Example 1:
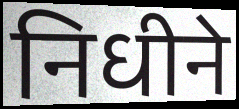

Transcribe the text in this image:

निधीने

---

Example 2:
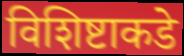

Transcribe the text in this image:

विशिष्टाकडे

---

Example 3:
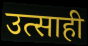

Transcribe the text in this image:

उत्साही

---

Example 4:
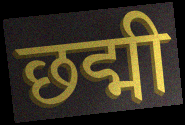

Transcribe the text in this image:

छद्मी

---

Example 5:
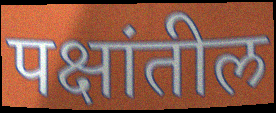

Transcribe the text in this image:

पक्षांतील